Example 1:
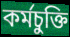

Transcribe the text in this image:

কর্মচুক্তি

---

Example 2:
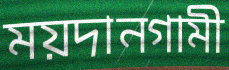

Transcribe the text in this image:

ময়দানগামী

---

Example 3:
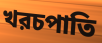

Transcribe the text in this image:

খরচপাতি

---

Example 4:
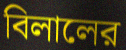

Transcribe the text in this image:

বিলালের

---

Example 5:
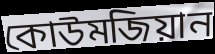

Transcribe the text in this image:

কোউমজিয়ান